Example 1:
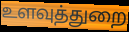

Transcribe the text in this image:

உளவுத்துறை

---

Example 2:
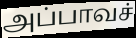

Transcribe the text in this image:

அப்பாவச்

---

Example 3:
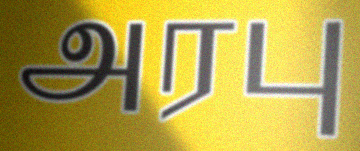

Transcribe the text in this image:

அரபு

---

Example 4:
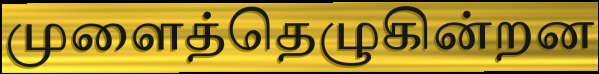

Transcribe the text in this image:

முளைத்தெழுகின்றன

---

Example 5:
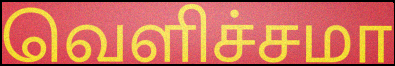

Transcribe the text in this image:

வெளிச்சமா